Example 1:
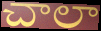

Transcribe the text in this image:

చాలా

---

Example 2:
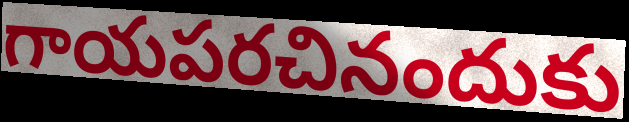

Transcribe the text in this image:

గాయపరచినందుకు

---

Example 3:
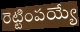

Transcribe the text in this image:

రెట్టింపయ్యే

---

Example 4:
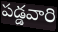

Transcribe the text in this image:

పడ్డవారి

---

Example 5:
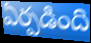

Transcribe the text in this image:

ఏర్పడింది